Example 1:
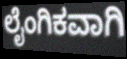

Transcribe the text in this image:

ಲೈಂಗಿಕವಾಗಿ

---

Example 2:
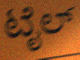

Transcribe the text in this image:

ಟೈಲ್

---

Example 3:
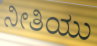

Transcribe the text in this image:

ನೀತಿಯು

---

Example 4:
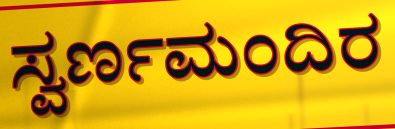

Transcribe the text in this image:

ಸ್ವರ್ಣಮಂದಿರ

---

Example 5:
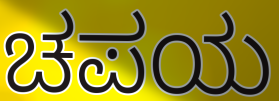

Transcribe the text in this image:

ಚಪಯ